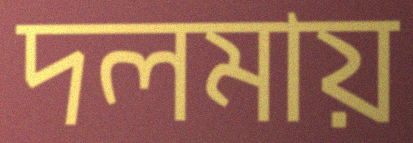
দলমায়